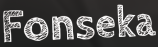
Fonseka